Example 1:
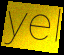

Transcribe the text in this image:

yel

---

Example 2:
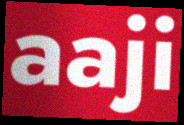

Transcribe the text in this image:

aaji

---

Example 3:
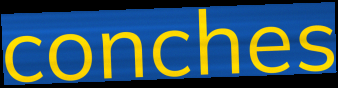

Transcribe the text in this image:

conches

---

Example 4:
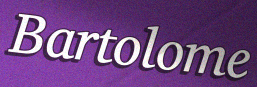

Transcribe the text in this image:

Bartolome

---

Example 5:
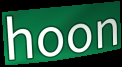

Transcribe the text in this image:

hoon